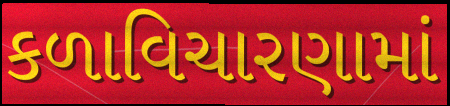
કળાવિચારણામાં